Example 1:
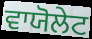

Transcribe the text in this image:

ਵਾਯੋਲੇਟ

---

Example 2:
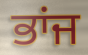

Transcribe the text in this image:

ਭਾਂਜ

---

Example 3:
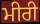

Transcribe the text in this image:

ਮੀਰੀ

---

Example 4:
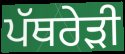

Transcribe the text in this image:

ਪੱਥਰੇੜੀ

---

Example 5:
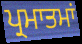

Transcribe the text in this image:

ਪ੍ਰਮਾਤਮਾਂ